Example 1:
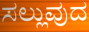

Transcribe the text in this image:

ಸಲ್ಲುವುದ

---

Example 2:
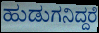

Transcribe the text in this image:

ಹುಡುಗನಿದ್ದರೆ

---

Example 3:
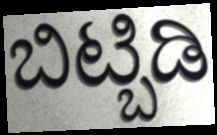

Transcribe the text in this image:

ಬಿಟ್ಬಿಡಿ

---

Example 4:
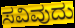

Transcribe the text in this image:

ಸವಿವುದು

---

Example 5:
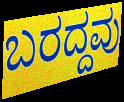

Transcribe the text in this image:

ಬರದ್ದವು